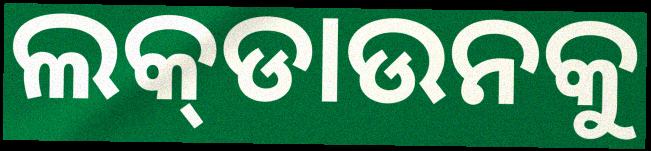
ଲକ୍‌ଡାଉନକୁ